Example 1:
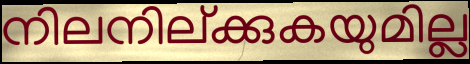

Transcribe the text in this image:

നിലനില്ക്കുകയുമില്ല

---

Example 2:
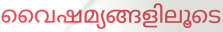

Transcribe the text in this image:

വൈഷമ്യങ്ങളിലൂടെ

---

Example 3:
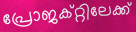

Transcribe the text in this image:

പ്രോജക്റ്റിലേക്ക്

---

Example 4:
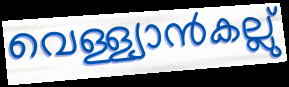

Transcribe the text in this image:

വെള്ള്യാൻകല്ലു്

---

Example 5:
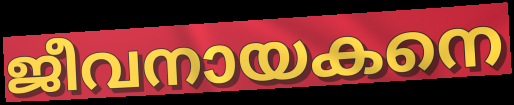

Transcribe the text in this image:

ജീവനായകനെ